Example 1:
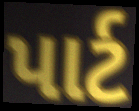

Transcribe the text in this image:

પાર્ટ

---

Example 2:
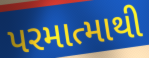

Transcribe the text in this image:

પરમાત્માથી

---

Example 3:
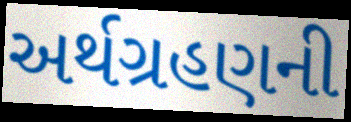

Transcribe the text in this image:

અર્થગ્રહણની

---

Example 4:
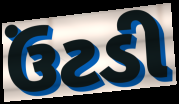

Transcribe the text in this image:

ઉંટડી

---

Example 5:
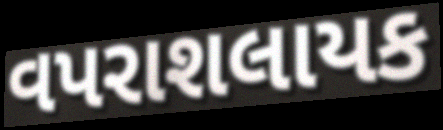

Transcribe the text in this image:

વપરાશલાયક